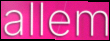
allem